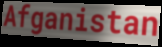
Afganistan